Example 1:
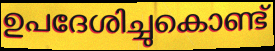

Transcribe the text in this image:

ഉപദേശിച്ചുകൊണ്ട്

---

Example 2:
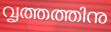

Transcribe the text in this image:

വൃത്തത്തിനു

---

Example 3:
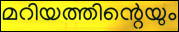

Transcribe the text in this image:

മറിയത്തിന്റെയും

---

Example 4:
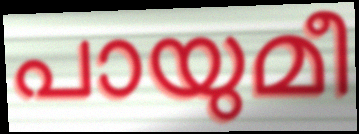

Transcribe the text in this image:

പായുമീ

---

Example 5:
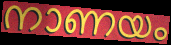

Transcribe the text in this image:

നാണയം